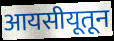
आयसीयूतून